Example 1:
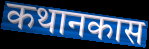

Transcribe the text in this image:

कथानकास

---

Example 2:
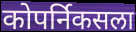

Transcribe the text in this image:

कोपर्निकसला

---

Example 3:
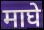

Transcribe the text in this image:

माघे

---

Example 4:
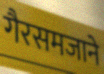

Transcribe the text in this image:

गैरसमजाने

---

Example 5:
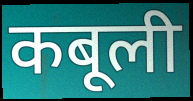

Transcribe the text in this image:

कबूली